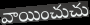
వాయించుచు